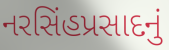
નરસિંહપ્રસાદનું